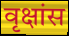
वृक्षांस